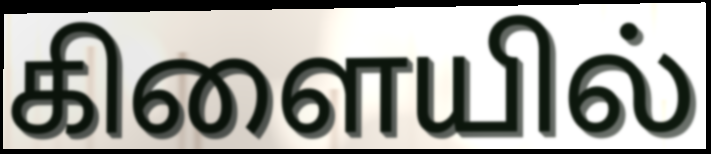
கிளையில்